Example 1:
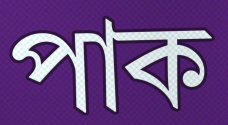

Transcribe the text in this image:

পাক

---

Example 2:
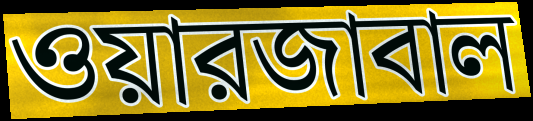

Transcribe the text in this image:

ওয়ারজাবাল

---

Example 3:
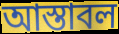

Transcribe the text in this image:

আস্তাবল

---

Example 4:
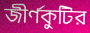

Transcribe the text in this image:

জীর্ণকুটির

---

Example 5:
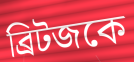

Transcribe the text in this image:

ব্রিটজকে